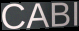
CABI